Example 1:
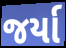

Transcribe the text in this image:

જર્યા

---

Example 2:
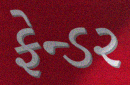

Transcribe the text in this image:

ફેન્ડર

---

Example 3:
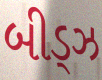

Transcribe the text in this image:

બીડ્ઝ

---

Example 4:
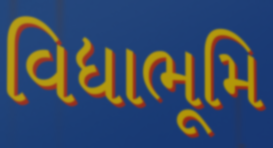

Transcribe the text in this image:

વિદ્યાભૂમિ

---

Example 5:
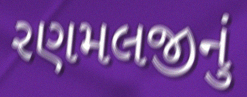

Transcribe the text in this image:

રણમલજીનું